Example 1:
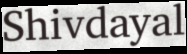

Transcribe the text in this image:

Shivdayal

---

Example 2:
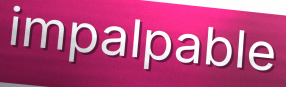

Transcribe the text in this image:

impalpable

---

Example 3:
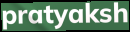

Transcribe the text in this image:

pratyaksh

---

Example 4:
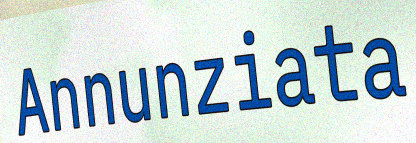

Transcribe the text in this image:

Annunziata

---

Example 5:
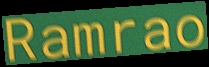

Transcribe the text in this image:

Ramrao